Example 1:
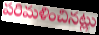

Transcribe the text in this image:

పరిమళించినట్లు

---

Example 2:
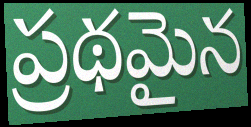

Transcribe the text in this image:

ప్రథమైన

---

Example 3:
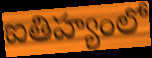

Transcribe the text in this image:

ఐతిహ్యంలో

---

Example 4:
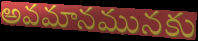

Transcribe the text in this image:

అవమానమునకు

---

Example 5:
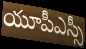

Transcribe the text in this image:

యూపీఎస్సీ